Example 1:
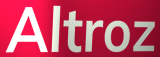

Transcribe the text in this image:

Altroz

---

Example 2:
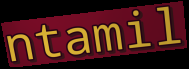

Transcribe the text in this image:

ntamil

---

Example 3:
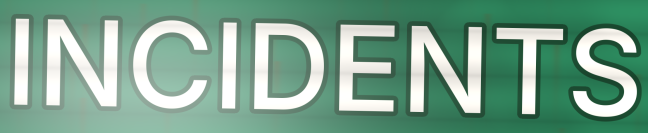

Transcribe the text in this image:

INCIDENTS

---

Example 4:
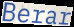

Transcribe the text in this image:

Berar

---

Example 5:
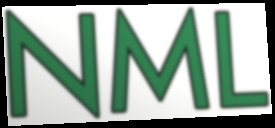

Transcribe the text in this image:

NML